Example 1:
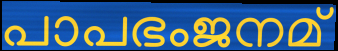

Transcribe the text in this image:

പാപഭംജനമ്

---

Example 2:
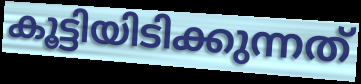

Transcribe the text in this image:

കൂട്ടിയിടിക്കുന്നത്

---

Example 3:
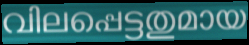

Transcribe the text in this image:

വിലപ്പെട്ടതുമായ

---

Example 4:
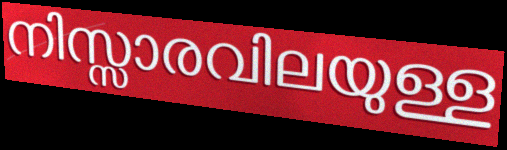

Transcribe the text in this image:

നിസ്സാരവിലയുള്ള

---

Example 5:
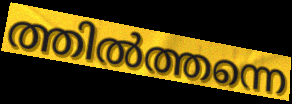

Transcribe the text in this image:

ത്തിൽത്തന്നെ